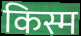
किस्म